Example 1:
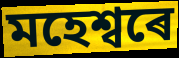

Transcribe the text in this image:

মহেশ্বৰে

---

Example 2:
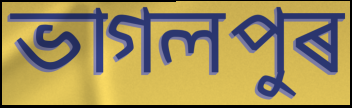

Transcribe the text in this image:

ভাগলপুৰ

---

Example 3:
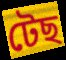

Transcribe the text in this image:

টেছ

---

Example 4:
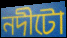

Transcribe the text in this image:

নদীটো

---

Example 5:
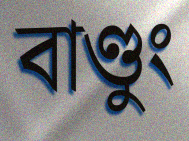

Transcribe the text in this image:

বাণ্ডুং